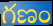
గణం